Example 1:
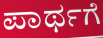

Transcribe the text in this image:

ಪಾರ್ಥಗೆ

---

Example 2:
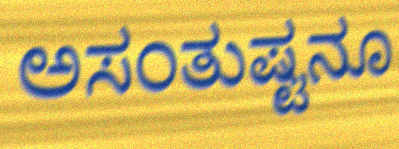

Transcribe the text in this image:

ಅಸಂತುಷ್ಟನೂ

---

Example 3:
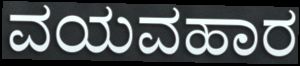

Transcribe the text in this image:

ವಯವಹಾರ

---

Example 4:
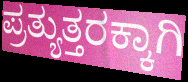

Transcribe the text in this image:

ಪ್ರತ್ಯುತ್ತರಕ್ಕಾಗಿ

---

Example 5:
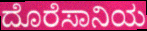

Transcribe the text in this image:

ದೊರೆಸಾನಿಯ